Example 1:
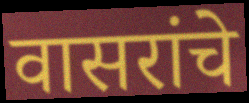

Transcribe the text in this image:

वासरांचे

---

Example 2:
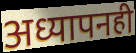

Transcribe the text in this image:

अध्यापनही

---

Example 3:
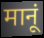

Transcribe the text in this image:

मानूं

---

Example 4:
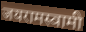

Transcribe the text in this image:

जयरामस्वामी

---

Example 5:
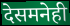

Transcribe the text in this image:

देसमनेही